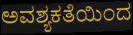
ಅವಶ್ಯಕತೆಯಿಂದ